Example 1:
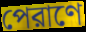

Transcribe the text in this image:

পেরাণে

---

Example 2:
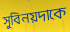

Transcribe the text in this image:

সুবিনয়দাকে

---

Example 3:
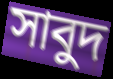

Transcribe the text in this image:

সাবুদ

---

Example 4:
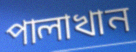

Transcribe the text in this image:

পালাখান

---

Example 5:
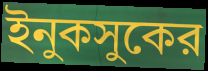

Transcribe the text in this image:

ইনুকসুকের